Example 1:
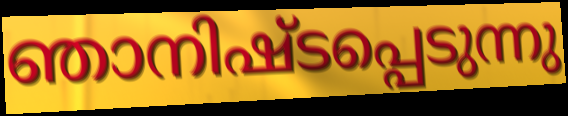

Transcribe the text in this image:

ഞാനിഷ്ടപ്പെടുന്നു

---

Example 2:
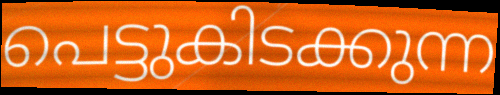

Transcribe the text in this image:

പെട്ടുകിടക്കുന്ന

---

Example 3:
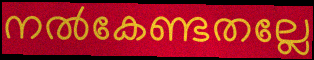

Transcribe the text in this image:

നൽകേണ്ടതല്ലേ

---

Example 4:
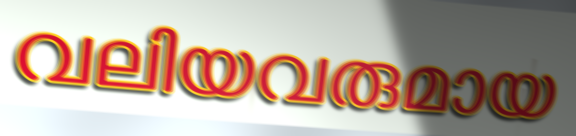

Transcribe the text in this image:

വലിയവരുമായ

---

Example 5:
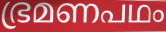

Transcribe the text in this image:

ഭ്രമണപഥം